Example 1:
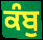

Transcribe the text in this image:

ਕੰਬੁ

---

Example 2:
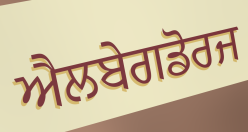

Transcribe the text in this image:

ਐਲਬੇਗਡੋਰਜ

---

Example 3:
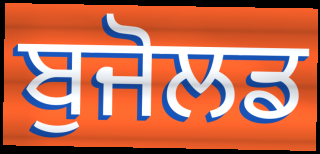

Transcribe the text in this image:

ਬੁਜੋਲਡ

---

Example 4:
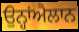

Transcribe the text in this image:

ਉਨ੍ਹਾਂਐਲਾਨ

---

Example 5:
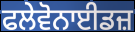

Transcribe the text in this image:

ਫਲੇਵੋਨਾਈਡਜ਼